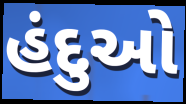
હંદુઓ